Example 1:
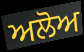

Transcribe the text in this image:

ਅਲੋਅ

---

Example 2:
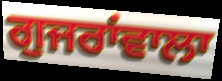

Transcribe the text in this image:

ਗੁਜਰਾਂਵਾਲਾ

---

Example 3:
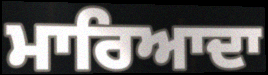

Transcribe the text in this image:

ਮਾਰਿਆਦਾ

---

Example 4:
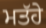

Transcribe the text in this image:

ਮਤੱਹੇ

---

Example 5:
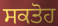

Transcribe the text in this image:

ਸਕਤੋਹ